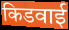
किडवाई